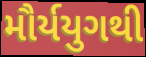
મૌર્યયુગથી